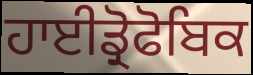
ਹਾਈਡ੍ਰੋਫੋਬਿਕ